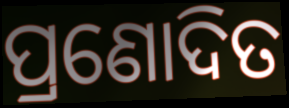
ପ୍ରଣୋଦିତ